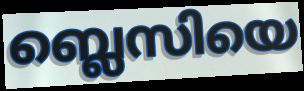
ബ്ലെസിയെ